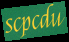
scpcdu